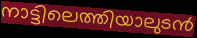
നാട്ടിലെത്തിയാലുടൻ